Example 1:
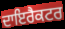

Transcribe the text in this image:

ਦਾਇਰੈਕਟਰ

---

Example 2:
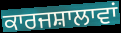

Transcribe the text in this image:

ਕਾਰਜਸ਼ਾਲਾਵਾਂ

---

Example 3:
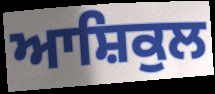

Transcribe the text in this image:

ਆਸ਼ਿਕੁਲ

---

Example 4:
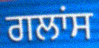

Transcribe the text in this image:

ਗਲਾਂਸ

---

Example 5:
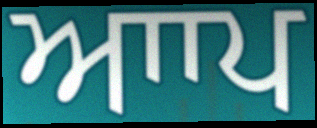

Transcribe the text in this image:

ਆਾਪ